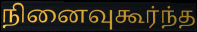
நினைவுகூர்ந்த